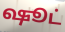
ஷூட்